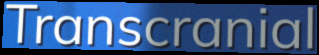
Transcranial